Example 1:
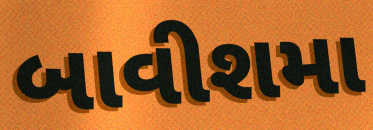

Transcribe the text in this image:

બાવીશમા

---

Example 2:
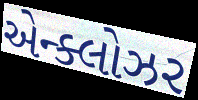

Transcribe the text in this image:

એન્ક્લોઝર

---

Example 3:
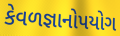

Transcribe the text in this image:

કેવળજ્ઞાનોપયોગ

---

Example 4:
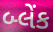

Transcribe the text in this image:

બ્લેંક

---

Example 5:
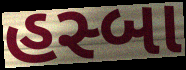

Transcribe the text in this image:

હસ્બા